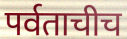
पर्वताचीच